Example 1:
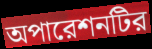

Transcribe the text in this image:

অপারেশনটির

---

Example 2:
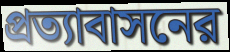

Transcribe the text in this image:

প্রত্যাবাসনের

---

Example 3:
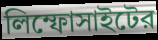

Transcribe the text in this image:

লিম্ফোসাইটের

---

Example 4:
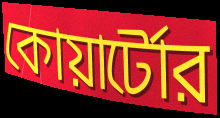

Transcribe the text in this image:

কোয়ার্টোর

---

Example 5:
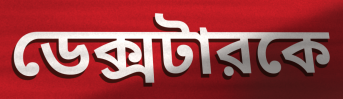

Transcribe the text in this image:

ডেক্সটারকে